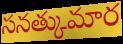
సనత్కుమార